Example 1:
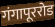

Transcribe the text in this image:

गंगापूररोड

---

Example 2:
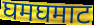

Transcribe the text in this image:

घमघमाट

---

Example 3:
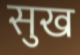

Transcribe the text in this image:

सुख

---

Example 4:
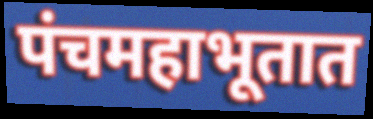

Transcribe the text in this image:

पंचमहाभूतात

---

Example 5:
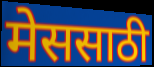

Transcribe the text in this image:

मेससाठी